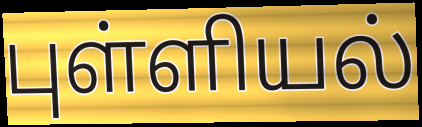
புள்ளியல்